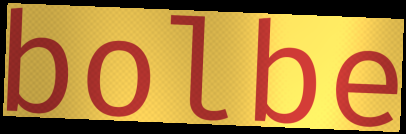
bolbe